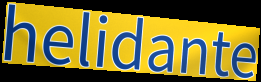
helidante